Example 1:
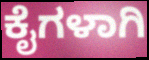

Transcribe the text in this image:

ಕೈಗಳಾಗಿ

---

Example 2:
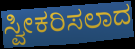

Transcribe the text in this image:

ಸ್ವೀಕರಿಸಲಾದ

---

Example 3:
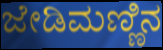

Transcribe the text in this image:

ಜೇಡಿಮಣ್ಣಿನ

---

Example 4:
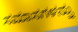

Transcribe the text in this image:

ಸಮಾಸಗಳನ್ನು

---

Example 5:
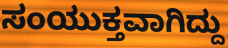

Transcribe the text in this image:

ಸಂಯುಕ್ತವಾಗಿದ್ದು